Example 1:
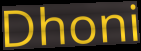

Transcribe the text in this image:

Dhoni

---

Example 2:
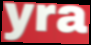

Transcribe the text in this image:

yra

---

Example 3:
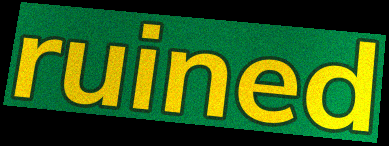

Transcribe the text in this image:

ruined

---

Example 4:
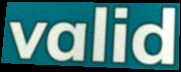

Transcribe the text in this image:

valid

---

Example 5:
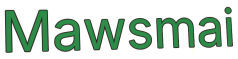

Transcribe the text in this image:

Mawsmai